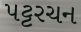
પટ્ટરચન